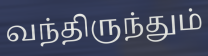
வந்திருந்தும்